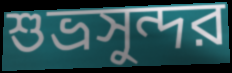
শুভ্রসুন্দর